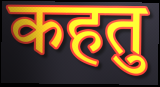
कहतु